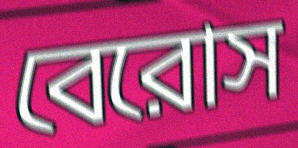
বেরোস